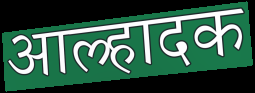
आल्हादक